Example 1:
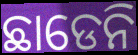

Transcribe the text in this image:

ଛାଡେନି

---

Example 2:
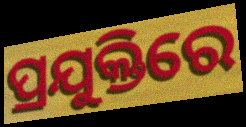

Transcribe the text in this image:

ପ୍ରଯୁକ୍ତିରେ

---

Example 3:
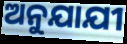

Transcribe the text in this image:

ଅନୁଯାଯୀ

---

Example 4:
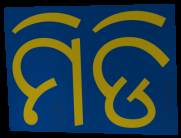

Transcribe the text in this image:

ମିଡି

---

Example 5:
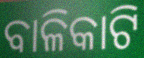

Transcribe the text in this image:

ବାଳିକାଟି